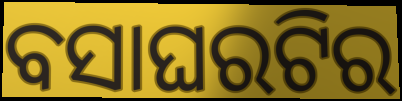
ବସାଘରଟିର